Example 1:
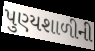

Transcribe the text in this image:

પુણ્યશાળીની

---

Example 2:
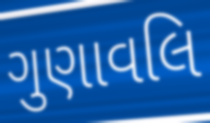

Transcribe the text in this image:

ગુણાવલિ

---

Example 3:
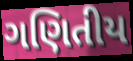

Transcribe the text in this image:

ગણિતીય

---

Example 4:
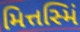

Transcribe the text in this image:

મિત્તસ્મિં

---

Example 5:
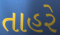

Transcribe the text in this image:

તાહરે